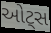
ઓટ્સ